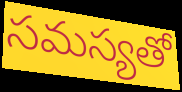
సమస్యతో